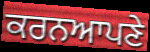
ਕਰਨਆਪਣੇ